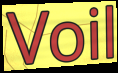
Voil